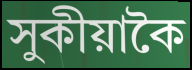
সুকীয়াকৈ